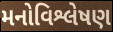
મનોવિશ્લેષણ